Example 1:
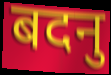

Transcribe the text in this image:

बदनु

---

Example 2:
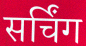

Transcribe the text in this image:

सर्चिंग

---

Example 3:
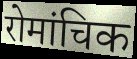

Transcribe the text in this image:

रोमांचिक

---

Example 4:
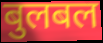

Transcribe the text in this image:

बुलबल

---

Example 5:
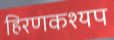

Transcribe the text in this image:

हिरणकश्यप